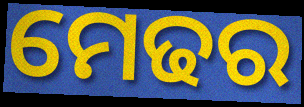
ମେଢର